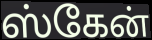
ஸ்கேன்